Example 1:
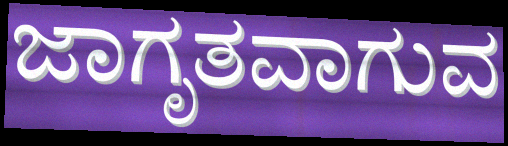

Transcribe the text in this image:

ಜಾಗೃತವಾಗುವ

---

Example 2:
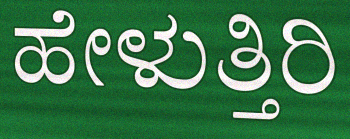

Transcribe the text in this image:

ಹೇಳುತ್ತಿರಿ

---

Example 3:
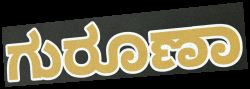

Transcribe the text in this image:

ಗುರೂಣಾ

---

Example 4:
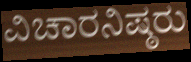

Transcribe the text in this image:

ವಿಚಾರನಿಷ್ಠರು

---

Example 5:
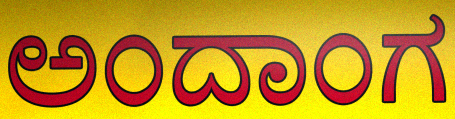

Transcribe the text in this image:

ಅಂದಾಂಗ